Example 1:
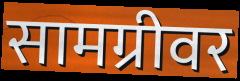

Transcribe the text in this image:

सामग्रीवर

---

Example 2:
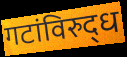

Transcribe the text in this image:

गटांविरुद्ध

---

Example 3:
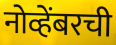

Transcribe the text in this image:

नोव्हेंबरची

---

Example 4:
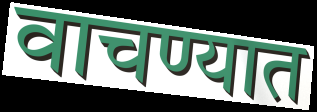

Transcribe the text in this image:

वाचण्यात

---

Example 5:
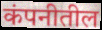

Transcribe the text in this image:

कंपनीतील